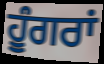
ਹੂੰਗਰਾਂ